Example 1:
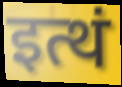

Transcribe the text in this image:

इत्थं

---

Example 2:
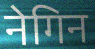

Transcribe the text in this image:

नेगिन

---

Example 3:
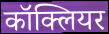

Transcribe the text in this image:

कॉक्लियर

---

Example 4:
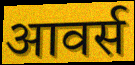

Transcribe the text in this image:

आवर्स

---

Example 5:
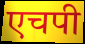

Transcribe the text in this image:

एचपी